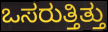
ಒಸರುತ್ತಿತ್ತು